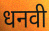
धनवी